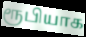
ரூபியாக